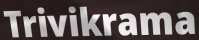
Trivikrama